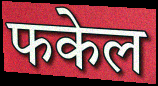
फकेल